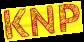
KNP